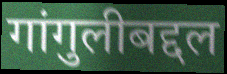
गांगुलीबद्दल